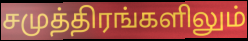
சமுத்திரங்களிலும்